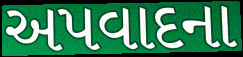
અપવાદના